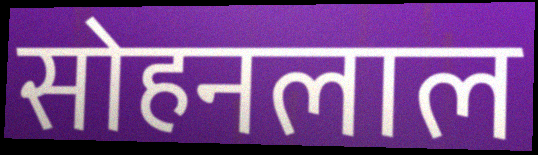
सोहनलाल